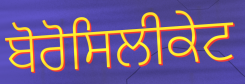
ਬੋਰੋਸਿਲੀਕੇਟ